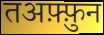
तअफ़्फ़ुन